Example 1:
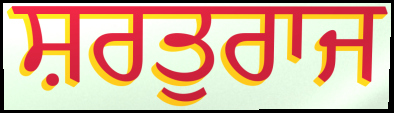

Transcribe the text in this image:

ਸ਼ਰਤੁਰਾਜ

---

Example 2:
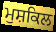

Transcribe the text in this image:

ਮੁਸ਼ਕਿਲ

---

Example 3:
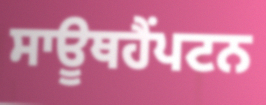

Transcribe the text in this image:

ਸਾਊਥਹੈਂਪਟਨ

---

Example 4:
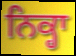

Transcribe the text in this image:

ਨਿਕ੍ਹਾ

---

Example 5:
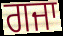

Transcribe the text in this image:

ਗਜਾ